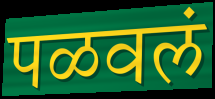
पळवलं